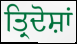
ਤ੍ਰਿਦੋਸ਼ਾਂ